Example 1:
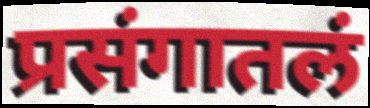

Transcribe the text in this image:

प्रसंगातलं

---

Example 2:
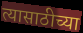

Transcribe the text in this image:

त्यासाठीच्या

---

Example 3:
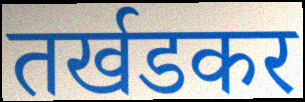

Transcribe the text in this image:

तर्खडकर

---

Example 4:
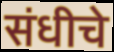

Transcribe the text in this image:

संधीचे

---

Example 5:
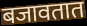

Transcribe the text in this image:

बजावतात